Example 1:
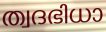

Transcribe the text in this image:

ത്വദഭിധാ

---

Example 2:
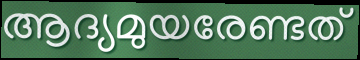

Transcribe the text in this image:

ആദ്യമുയരേണ്ടത്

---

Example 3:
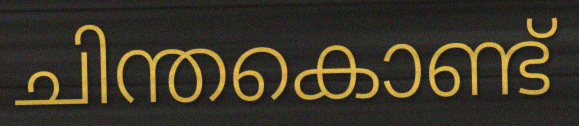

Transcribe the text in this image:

ചിന്തകൊണ്ട്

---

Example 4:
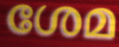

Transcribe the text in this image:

ശേമ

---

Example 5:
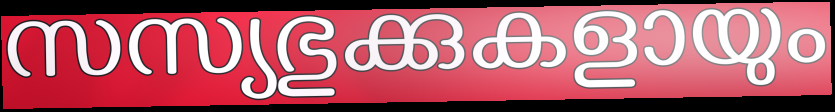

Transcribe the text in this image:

സസ്യഭുക്കുകളായും